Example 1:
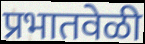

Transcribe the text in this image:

प्रभातवेळी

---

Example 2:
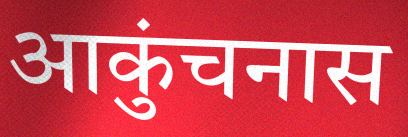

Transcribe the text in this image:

आकुंचनास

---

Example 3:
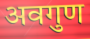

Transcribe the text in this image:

अवगुण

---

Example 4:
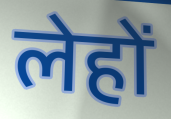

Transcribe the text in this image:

लेहों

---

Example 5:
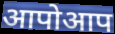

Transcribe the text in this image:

आपोआप